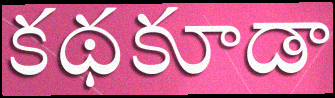
కథకూడా